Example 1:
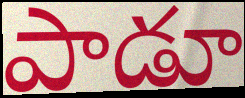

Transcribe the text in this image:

పాడూ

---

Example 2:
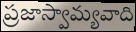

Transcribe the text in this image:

ప్రజాస్వామ్యవాది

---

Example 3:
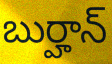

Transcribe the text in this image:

బుర్హాన్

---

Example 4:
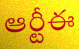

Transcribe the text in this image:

ఆర్టీఈ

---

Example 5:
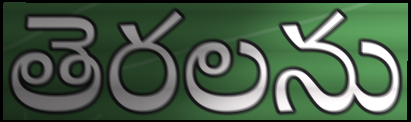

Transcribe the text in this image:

తెరలను